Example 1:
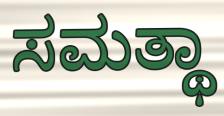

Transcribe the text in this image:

ಸಮತ್ಥಾ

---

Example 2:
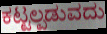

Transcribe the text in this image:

ಕಟ್ಟಲ್ಪಡುವದು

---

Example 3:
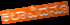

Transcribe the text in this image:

ಕಲಾವಿದನೂ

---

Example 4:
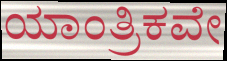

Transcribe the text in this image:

ಯಾಂತ್ರಿಕವೇ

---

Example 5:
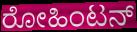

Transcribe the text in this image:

ರೋಹಿಂಟನ್